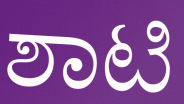
ಶಾಟಿ